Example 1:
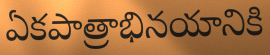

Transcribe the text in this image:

ఏకపాత్రాభినయానికి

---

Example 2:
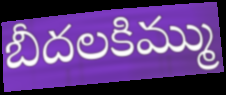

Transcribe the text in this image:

బీదలకిమ్ము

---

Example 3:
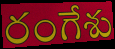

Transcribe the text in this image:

రంగేశు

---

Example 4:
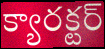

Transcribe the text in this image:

క్యారక్టర్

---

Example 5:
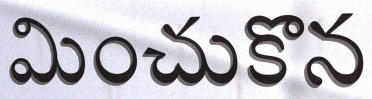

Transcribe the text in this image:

మించుకొన